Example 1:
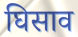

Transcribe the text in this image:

घिसाव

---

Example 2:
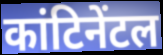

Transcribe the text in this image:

कांटिनेंटल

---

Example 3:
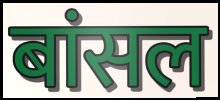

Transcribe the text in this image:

बांसल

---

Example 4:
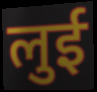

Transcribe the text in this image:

लुई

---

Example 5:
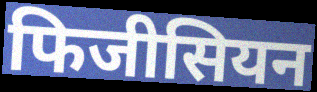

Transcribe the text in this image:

फिजीसियन